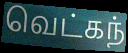
வெட்கந்